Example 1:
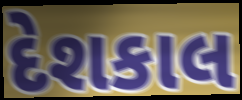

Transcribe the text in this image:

દેશકાલ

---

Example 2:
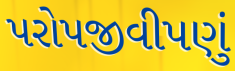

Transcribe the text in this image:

પરોપજીવીપણું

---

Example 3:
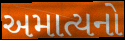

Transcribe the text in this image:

અમાત્યનો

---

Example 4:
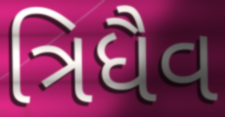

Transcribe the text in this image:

ત્રિધૈવ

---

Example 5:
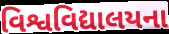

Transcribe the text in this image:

વિશ્વવિદ્યાલયના